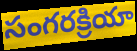
సంగరక్రియా